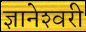
ज्ञानेश्वरी